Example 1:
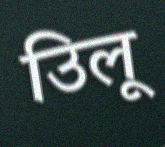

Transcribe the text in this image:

उिलू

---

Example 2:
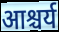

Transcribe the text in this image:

आश्चर्य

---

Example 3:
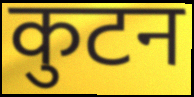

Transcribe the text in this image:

कुटन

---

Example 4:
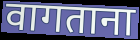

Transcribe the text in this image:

वागताना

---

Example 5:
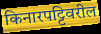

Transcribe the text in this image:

किनारपट्टिवरील